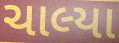
ચાલ્યા